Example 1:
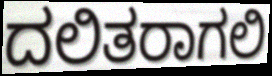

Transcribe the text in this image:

ದಲಿತರಾಗಲಿ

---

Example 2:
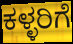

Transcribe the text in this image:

ಕಳ್ಳರಿಗೆ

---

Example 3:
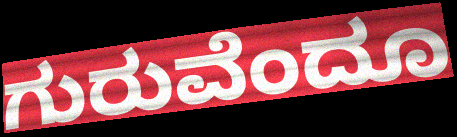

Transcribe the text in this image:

ಗುರುವೆಂದೂ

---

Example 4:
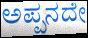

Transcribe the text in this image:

ಅಪ್ಪನದೇ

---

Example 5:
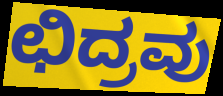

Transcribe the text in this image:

ಛಿದ್ರವು